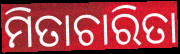
ମିତାଚାରିତା